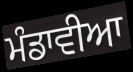
ਮੰਡਾਵੀਆ